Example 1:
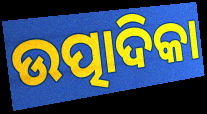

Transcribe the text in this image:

ଉତ୍ପାଦିକା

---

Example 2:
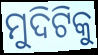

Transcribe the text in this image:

ମୁଦିଟିକୁ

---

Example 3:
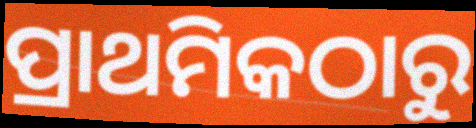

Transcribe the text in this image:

ପ୍ରାଥମିକଠାରୁ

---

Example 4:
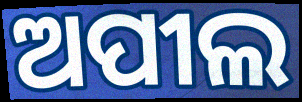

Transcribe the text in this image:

ଅପୀଲ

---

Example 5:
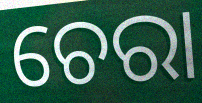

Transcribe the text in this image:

ଚେରା